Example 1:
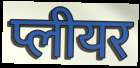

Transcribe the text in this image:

प्लीयर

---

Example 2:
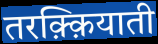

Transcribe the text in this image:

तरक़्क़ियाती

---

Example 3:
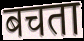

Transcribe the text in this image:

बचता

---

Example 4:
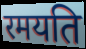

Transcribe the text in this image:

रमयति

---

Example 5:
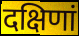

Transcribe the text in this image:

दक्षिणां